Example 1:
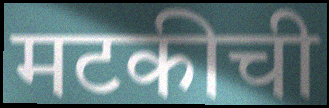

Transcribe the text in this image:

मटकीची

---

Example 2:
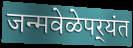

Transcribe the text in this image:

जन्मवेळेपर्यंत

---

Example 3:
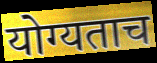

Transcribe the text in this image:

योग्यताच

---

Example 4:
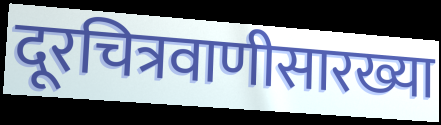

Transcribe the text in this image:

दूरचित्रवाणीसारख्या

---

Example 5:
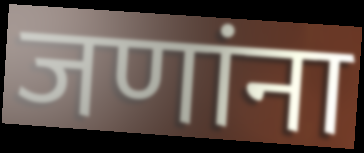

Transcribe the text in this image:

जणांना